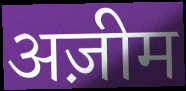
अज़ीम